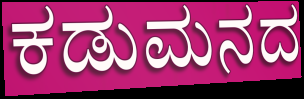
ಕಡುಮನದ